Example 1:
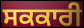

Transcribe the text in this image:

ਸਕਕਾਰੀ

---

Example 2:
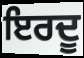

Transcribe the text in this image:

ਇਰਦੂ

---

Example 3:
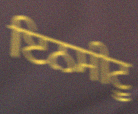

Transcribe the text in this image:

ਇਨਸੀਟੂ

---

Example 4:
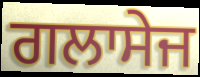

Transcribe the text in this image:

ਗਲਾਸੇਜ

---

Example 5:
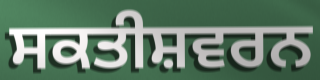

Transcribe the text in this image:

ਸਕਤੀਸ਼ਵਰਨ